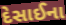
દેસાઈના